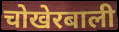
चोखेरबाली